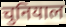
चुनियाल